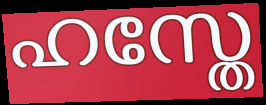
ഹസ്തേ